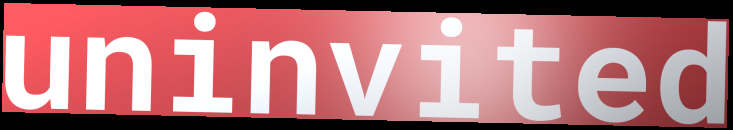
uninvited